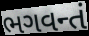
ભગવન્તં